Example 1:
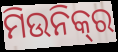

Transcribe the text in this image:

ମିଉନିକ୍‌ର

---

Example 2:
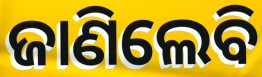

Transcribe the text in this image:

ଜାଣିଲେବି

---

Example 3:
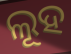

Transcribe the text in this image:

ଲୂହ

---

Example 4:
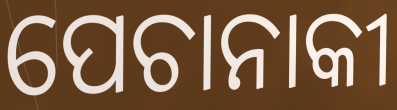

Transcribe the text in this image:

ପେଚାନାକୀ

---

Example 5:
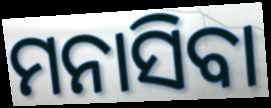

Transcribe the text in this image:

ମନାସିବା